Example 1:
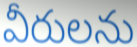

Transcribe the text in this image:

వీరులను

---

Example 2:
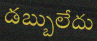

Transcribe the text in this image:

డబ్బులేదు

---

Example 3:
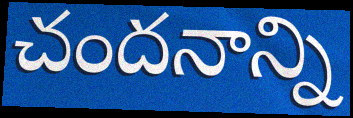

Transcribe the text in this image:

చందనాన్ని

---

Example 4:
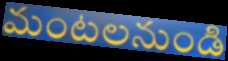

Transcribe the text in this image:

మంటలనుండి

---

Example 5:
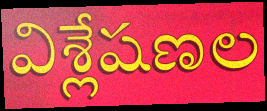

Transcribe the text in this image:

విశ్లేషణల